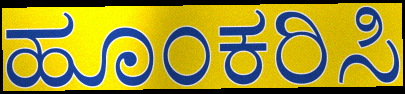
ಹೂಂಕರಿಸಿ